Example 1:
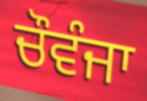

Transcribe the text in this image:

ਚੌਵੰਜਾ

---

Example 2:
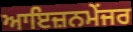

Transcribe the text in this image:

ਆਇਜ਼ਨਮੇਂਜਰ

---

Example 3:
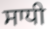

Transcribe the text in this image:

ਸਾਧੀ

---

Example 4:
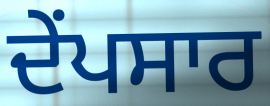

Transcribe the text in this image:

ਦੇਂਪਸਾਰ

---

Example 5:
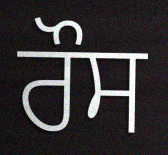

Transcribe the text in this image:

ਰੌਸ